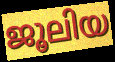
ജൂലിയ